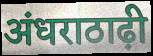
अंधराठाढ़ी